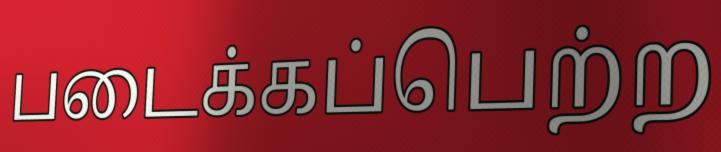
படைக்கப்பெற்ற